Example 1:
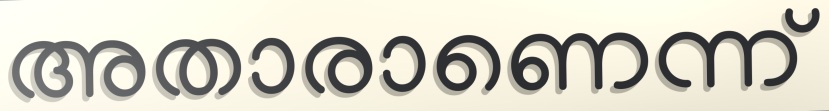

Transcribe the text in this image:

അതാരാണെന്ന്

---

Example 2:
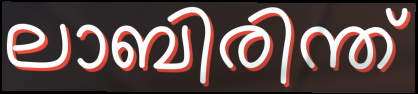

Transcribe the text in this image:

ലാബിരിന്ത്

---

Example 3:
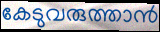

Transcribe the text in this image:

കേടുവരുത്താൻ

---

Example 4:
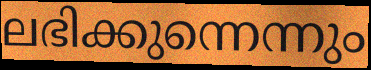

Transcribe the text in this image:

ലഭിക്കുന്നെന്നും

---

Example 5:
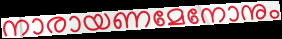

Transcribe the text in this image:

നാരായണമേനോനും